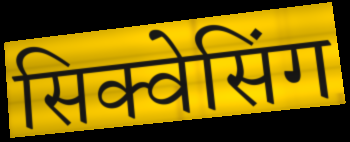
सिक्वेसिंग